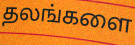
தலங்களை